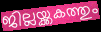
ജില്ലയ്ക്കകത്തും